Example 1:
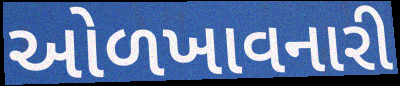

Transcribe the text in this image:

ઓળખાવનારી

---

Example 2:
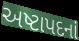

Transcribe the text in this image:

અષ્ટાપદનાં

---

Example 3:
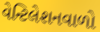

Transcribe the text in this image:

વેન્ટિલેશનવાળો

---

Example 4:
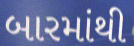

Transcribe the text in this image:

બારમાંથી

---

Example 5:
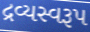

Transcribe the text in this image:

દ્રવ્યસ્વરૂપ